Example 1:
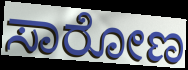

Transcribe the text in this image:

ಸಾರೋಣ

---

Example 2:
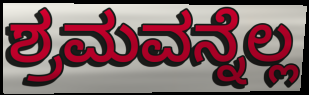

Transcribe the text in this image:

ಶ್ರಮವನ್ನೆಲ್ಲ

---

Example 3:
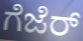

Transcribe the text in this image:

ಗೆಜೆರ್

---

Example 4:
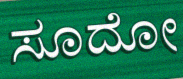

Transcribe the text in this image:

ಸೂದೋ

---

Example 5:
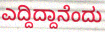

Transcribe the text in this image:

ಎದ್ದಿದ್ದಾನೆಂದು